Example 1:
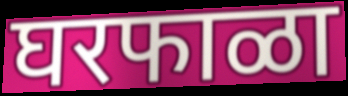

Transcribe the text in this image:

घरफाळा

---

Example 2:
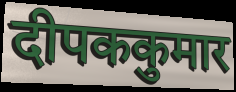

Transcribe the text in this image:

दीपककुमार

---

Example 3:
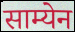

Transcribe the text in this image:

साम्येन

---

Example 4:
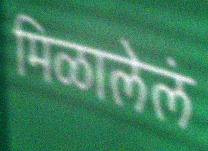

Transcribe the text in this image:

मिळालेलं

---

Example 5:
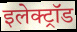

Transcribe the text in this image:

इलेक्ट्रॉड